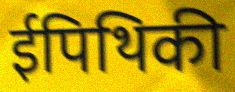
ईपिथिकी